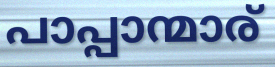
പാപ്പാന്മാര്